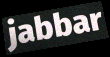
jabbar